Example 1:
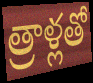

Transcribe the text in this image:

త్రాళ్లతో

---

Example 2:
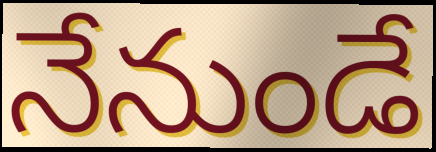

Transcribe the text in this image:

నేనుండే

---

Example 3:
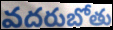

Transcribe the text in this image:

వదరుబోతు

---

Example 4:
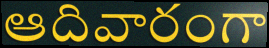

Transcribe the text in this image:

ఆదివారంగా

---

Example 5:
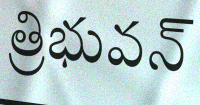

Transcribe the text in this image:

త్రిభువన్